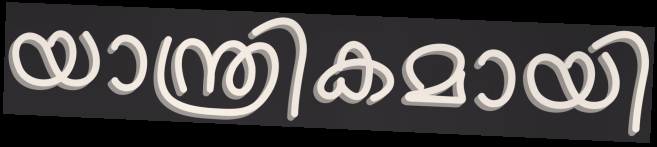
യാന്ത്രികമായി